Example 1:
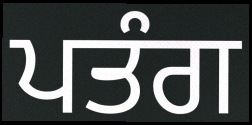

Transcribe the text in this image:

ਪਤੰਗ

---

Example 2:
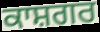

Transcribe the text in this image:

ਕਾਸ਼ਗਰ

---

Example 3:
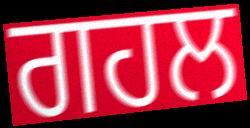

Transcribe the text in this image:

ਗਹਲ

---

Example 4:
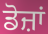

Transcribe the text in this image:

ਡੋਜ਼ਾਂ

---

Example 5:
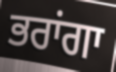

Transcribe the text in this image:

ਭਰਾਂਗਾ